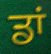
ਡਾਂ